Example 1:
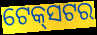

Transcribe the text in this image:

ଟେକ୍‌ସଟର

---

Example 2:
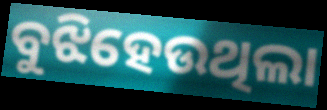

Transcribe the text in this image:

ବୁଝିହେଉଥିଲା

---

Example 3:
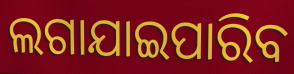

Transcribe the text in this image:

ଲଗାଯାଇପାରିବ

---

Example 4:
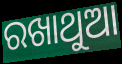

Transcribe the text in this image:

ରଖାଥୁଆ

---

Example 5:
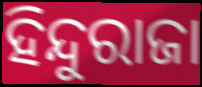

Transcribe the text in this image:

ହିନ୍ଦୁରାଜା